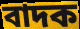
বাদক